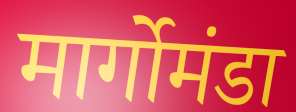
मार्गोमंडा